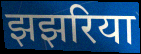
झझरिया